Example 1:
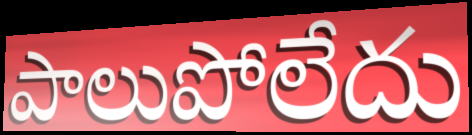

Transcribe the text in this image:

పాలుపోలేదు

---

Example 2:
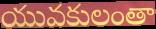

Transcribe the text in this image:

యువకులంతా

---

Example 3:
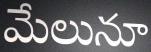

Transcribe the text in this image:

మేలునూ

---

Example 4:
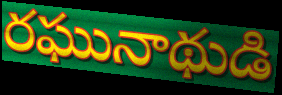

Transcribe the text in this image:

రఘునాథుడి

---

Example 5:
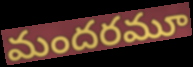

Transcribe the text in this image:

మందరమూ